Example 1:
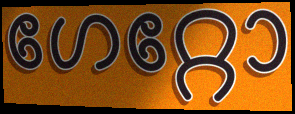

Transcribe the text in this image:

ഗേറ്റോ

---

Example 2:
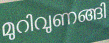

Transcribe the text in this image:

മുറിവുണങ്ങി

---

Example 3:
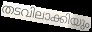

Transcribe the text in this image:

തടവിലാക്കിയും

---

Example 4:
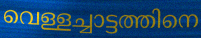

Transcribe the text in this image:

വെള്ളച്ചാട്ടത്തിനെ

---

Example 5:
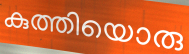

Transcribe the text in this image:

കുത്തിയൊരു